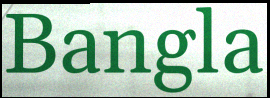
Bangla